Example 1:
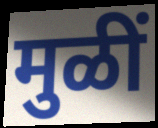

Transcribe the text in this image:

मुळीं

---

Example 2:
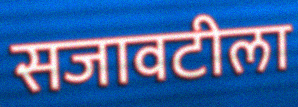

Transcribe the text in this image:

सजावटीला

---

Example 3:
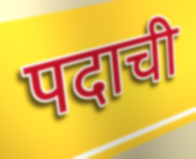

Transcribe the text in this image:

पदाची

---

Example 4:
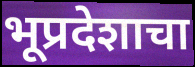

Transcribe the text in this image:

भूप्रदेशाचा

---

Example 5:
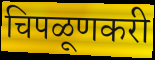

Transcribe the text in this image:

चिपळूणकरी